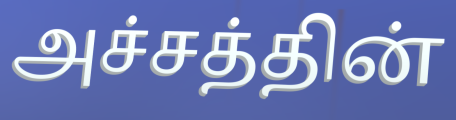
அச்சத்தின்